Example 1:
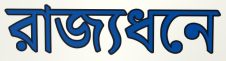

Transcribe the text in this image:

রাজ্যধনে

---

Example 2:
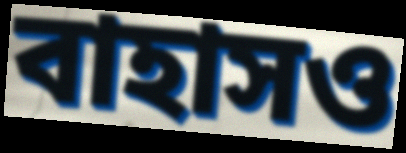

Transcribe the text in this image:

বাহাসও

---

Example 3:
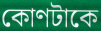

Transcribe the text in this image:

কোণটাকে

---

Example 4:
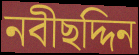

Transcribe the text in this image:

নবীছদ্দিন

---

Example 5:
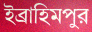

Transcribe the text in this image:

ইব্রাহিমপুর